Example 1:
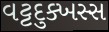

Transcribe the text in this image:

વટ્ટદુક્ખસ્સ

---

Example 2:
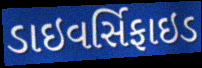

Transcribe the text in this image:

ડાઇવર્સિફાઇડ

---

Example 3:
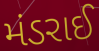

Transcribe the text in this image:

મંડરાઈ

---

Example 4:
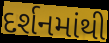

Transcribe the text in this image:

દર્શનમાંથી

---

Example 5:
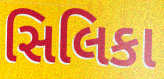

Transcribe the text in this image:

સિલિકા